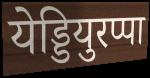
येड्डियुरप्पा